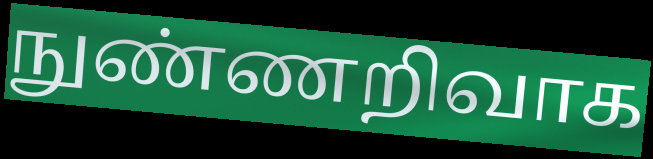
நுண்ணறிவாக